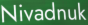
Nivadnuk